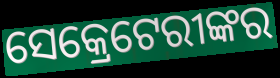
ସେକ୍ରେଟେରୀଙ୍କର